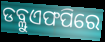
ଡବ୍ଲୁଏଫପିରେ